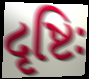
દૃષ્ટિઃ